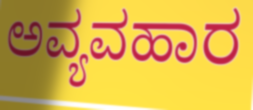
ಅವ್ಯವಹಾರ